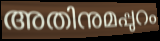
അതിനുമപ്പുറം